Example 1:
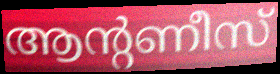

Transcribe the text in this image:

ആന്റണീസ്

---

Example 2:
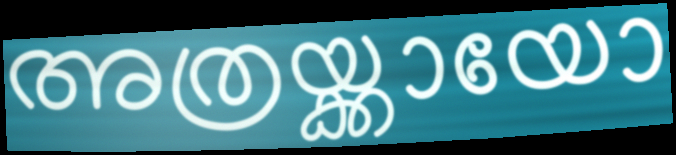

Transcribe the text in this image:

അത്രയ്ക്കായോ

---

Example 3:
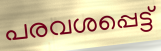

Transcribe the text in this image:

പരവശപ്പെട്ട്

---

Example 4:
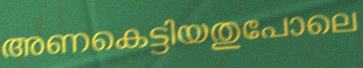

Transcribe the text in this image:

അണകെട്ടിയതുപോലെ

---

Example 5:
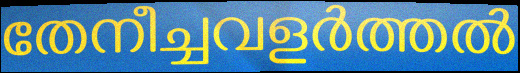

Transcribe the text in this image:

തേനീച്ചവളർത്തൽ